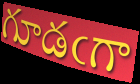
గూడఁగా